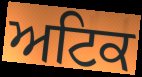
ਅਟਿਕ